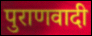
पुराणवादी